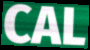
CAL